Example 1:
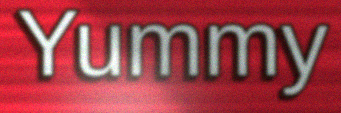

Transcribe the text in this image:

Yummy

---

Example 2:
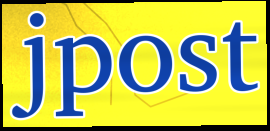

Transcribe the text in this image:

jpost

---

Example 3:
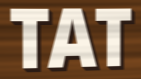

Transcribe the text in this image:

TAT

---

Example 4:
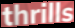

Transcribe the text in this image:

thrills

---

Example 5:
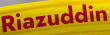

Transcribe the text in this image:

Riazuddin